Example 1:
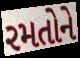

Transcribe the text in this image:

રમતોને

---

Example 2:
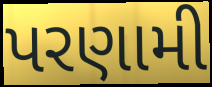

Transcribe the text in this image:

પરણામી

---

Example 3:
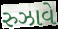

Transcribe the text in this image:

રુઝાવે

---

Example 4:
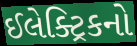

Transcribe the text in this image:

ઈલેક્ટ્રિકનો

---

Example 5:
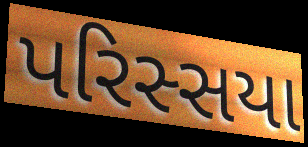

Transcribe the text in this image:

પરિસ્સયા